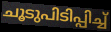
ചൂടുപിടിപ്പിച്ച്